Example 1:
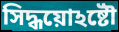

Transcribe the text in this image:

সিদ্ধয়োঽষ্টৌ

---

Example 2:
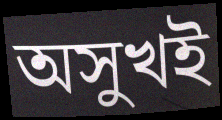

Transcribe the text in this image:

অসুখই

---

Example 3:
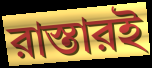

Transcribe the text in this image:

রাস্তারই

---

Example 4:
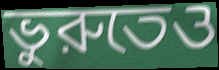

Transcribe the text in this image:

ভুরুতেও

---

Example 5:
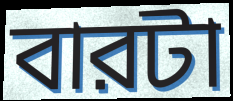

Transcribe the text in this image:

বারটা